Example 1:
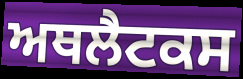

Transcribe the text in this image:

ਅਥਲੈਟਕਸ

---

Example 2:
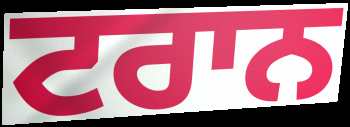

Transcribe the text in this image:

ਟਰਾਨ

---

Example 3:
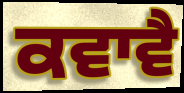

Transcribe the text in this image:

ਕਵਾਵੈ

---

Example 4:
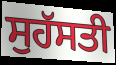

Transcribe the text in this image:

ਸੁਹੱਸਤੀ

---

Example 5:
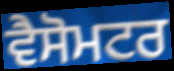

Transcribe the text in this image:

ਵੈਸੋਮਟਰ